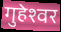
गुहेश्वर